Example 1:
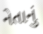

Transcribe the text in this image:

નેતાનું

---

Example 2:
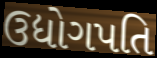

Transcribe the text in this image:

ઉદ્યોગપતિ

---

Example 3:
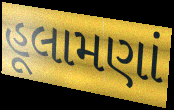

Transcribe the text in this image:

હૂલામણાં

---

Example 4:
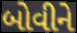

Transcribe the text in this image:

બોવીને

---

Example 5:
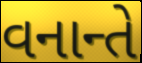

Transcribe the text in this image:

વનાન્તે